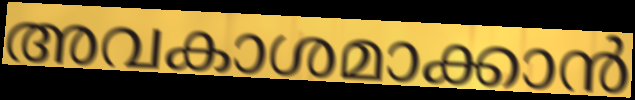
അവകാശമാക്കാൻ